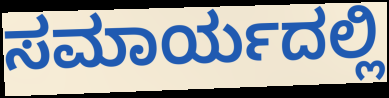
ಸಮಾರ್ಯದಲ್ಲಿ